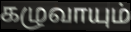
கழுவாயும்